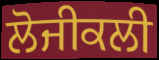
ਲੋਜੀਕਲੀ